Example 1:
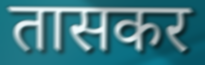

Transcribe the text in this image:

तासकर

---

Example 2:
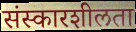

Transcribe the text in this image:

संस्कारशीलता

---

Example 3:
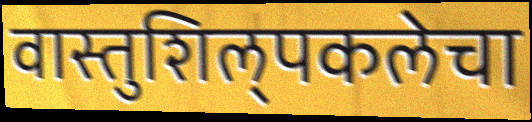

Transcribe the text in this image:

वास्तुशिल्पकलेचा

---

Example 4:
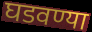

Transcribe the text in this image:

घडवण्या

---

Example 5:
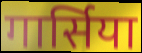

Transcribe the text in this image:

गार्सिया